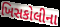
ખિસકોલીના